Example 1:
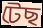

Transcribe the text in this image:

টেছ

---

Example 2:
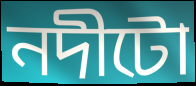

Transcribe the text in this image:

নদীটো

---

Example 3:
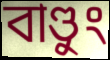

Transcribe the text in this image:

বাণ্ডুং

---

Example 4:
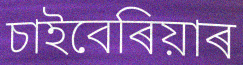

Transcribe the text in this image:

চাইবেৰিয়াৰ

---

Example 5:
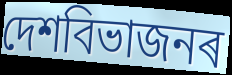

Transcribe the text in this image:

দেশবিভাজনৰ